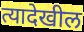
त्यादेखील